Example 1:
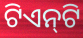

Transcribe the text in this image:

ଟିଏନ୍‌ଟି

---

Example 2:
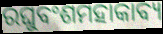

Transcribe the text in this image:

ରଘୁବଂଶମହାକାବ୍ୟ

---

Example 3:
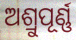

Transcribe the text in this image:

ଅଶ୍ରୁପୂର୍ଣ୍ଣ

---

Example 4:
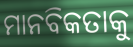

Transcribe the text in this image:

ମାନବିକତାକୁ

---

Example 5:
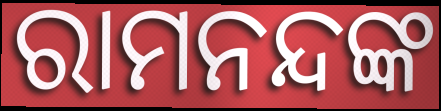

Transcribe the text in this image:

ରାମନନ୍ଦଙ୍କ